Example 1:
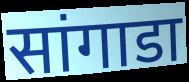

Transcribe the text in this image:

सांगाडा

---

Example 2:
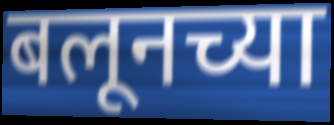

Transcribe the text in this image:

बलूनच्या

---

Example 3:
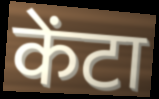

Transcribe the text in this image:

केंटा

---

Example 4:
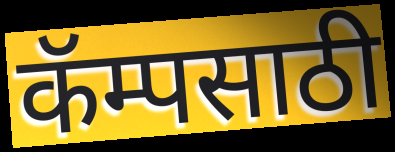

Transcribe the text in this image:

कॅम्पसाठी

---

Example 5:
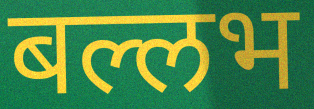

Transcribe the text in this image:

बल्लभ